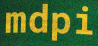
mdpi